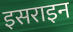
इसराइन